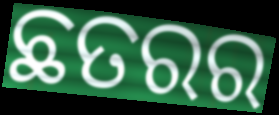
ଛତରର